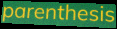
parenthesis